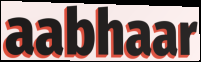
aabhaar